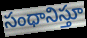
సంధానిస్తూ